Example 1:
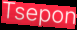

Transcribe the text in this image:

Tsepon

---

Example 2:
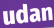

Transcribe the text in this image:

udan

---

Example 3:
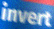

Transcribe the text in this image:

invert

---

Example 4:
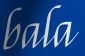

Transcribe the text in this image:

bala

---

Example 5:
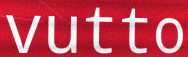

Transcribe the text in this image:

vutto